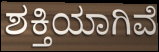
ಶಕ್ತಿಯಾಗಿವೆ